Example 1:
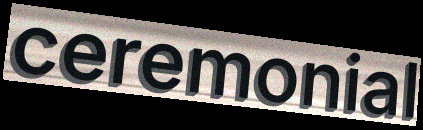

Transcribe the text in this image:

ceremonial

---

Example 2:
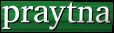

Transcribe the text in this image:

praytna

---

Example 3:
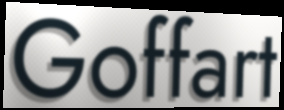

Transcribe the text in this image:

Goffart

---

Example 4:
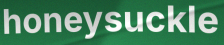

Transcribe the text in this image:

honeysuckle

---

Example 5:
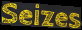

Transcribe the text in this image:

Seizes